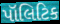
પૉલિટિક